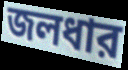
জলধার